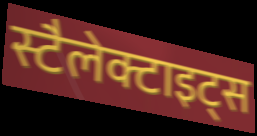
स्टैलेक्टाइट्स